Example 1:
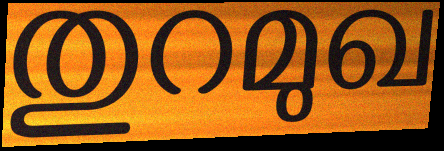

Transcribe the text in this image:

തുറമുഖ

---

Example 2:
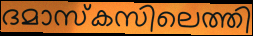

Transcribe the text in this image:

ദമാസ്കസിലെത്തി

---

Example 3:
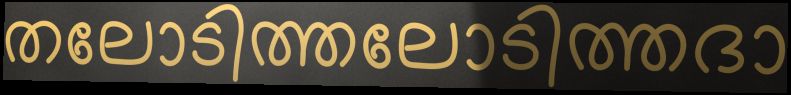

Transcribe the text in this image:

തലോടിത്തലോടിത്തദാ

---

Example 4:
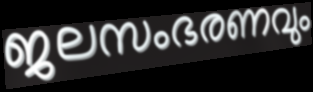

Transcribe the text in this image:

ജലസംഭരണവും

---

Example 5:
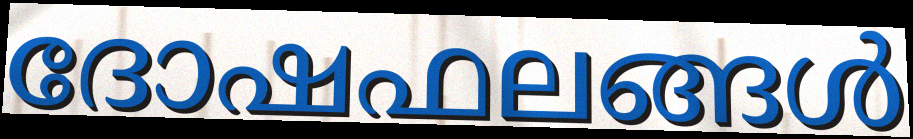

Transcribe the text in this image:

ദോഷഫലങ്ങൾ